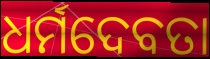
ଧର୍ମଦେବତା